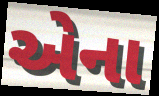
એના